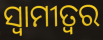
ସ୍ୱାମୀତ୍ୱର